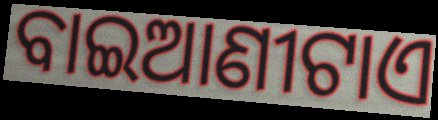
ବାଇଆଣୀଟାଏ